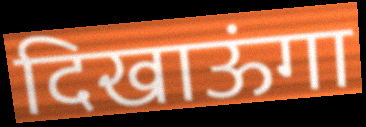
दिखाऊंगा